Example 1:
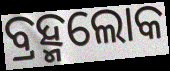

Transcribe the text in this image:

ବ୍ରହ୍ମଲୋକ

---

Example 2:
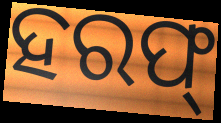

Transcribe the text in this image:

ହରଫ୍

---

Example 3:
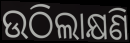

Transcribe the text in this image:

ଉଠିଲାକ୍ଷଣି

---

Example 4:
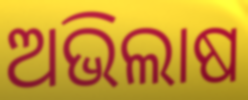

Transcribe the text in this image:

ଅଭିଲାଷ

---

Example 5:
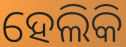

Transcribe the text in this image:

ହେଲିକି